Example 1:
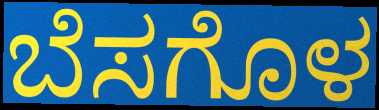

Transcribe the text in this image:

ಬೆಸಗೊಳ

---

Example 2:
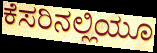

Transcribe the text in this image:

ಕೆಸರಿನಲ್ಲಿಯೂ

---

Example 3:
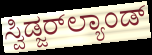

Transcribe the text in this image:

ಸ್ವಿಡ್ಜರ್‌ಲ್ಯಾಂಡ್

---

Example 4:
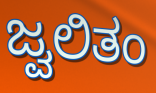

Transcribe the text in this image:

ಜ್ವಲಿತಂ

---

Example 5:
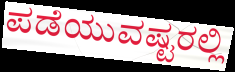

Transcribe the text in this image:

ಪಡೆಯುವಷ್ಟರಲ್ಲಿ